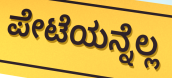
ಪೇಟೆಯನ್ನೆಲ್ಲ